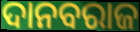
ଦାନବରାଜ